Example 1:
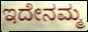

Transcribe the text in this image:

ಇದೇನಮ್ಮ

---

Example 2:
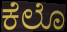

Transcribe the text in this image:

ಕೆಲೊ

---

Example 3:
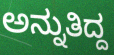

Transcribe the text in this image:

ಅನ್ನುತಿದ್ದ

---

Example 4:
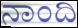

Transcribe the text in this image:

ನಾಂದಿ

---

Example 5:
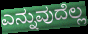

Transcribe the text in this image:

ಎನ್ನುವುದೆಲ್ಲ